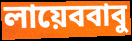
লায়েববাবু